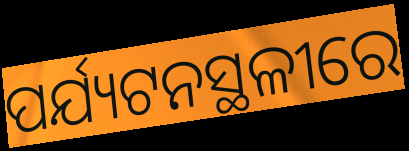
ପର୍ଯ୍ୟଟନସ୍ଥଳୀରେ